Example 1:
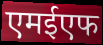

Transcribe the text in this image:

एमईएफ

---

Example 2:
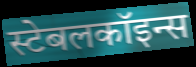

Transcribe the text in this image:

स्टेबलकॉइन्स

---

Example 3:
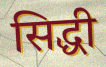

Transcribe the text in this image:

सिद्धी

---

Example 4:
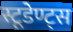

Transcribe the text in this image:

स्टूडेण्ट्स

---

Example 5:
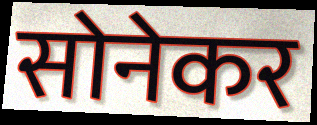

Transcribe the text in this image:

सोनेकर